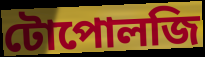
টোপোলজি